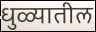
धुळ्यातील